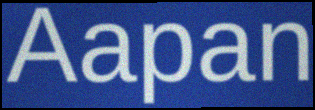
Aapan